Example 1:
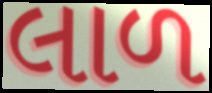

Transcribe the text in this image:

લાળ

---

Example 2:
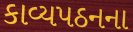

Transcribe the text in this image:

કાવ્યપઠનના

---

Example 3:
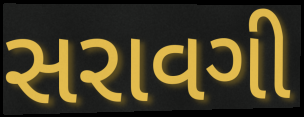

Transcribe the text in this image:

સરાવગી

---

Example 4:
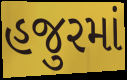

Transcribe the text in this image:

હજુરમાં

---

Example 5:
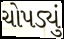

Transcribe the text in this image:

ચોપડ્યું